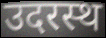
उदरस्थ